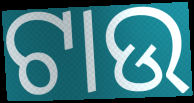
ଟାଉ